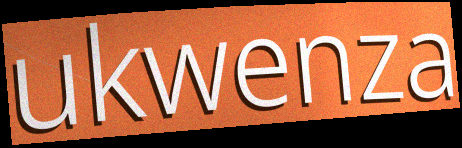
ukwenza